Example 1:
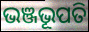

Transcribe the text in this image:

ଭଞ୍ଜଭୂପତି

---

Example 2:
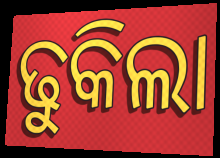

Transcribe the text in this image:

ଢୁକିଲା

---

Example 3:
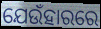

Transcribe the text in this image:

ଯେଉଁହାରରେ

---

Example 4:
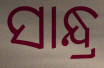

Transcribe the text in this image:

ସାନ୍ଧ୍ର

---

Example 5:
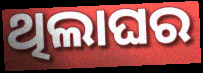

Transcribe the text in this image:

ଥିଲାଘର